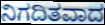
ನಿಗದಿತವಾದ